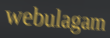
webulagam